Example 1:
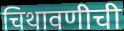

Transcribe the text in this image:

चिथावणीची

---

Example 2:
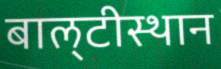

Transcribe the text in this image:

बाल्टीस्थान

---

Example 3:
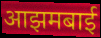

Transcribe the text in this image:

आझमबाई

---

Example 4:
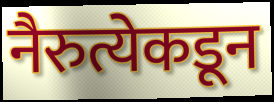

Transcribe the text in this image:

नैरुत्येकडून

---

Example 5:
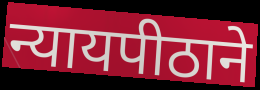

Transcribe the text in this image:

न्यायपीठाने